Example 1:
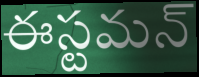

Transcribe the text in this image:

ఈస్టమన్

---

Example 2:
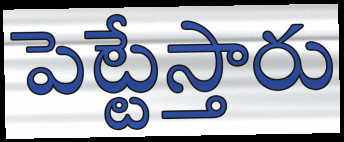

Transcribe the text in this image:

పెట్టేస్తారు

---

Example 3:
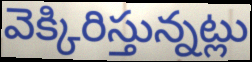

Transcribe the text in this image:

వెక్కిరిస్తున్నట్లు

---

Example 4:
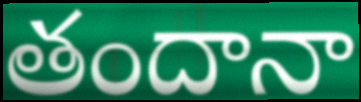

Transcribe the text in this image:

తందానా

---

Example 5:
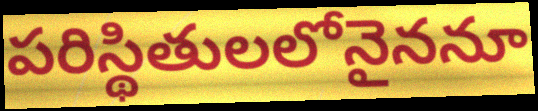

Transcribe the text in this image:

పరిస్థితులలోనైననూ